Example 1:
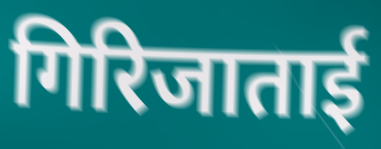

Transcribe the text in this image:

गिरिजाताई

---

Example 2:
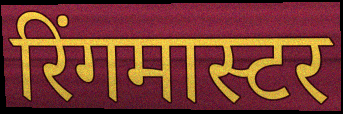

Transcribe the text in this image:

रिंगमास्टर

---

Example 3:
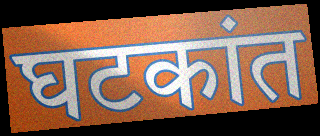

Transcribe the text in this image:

घटकांत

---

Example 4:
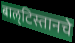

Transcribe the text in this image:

बाल्टिस्तानचे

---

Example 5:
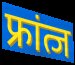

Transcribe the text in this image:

फ्रांत्ज